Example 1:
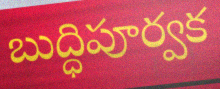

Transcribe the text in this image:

బుద్ధిపూర్వక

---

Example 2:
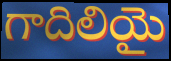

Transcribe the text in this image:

గాదిలియై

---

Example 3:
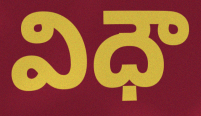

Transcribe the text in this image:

విధౌ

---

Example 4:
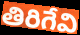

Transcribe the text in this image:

తిరిగేవి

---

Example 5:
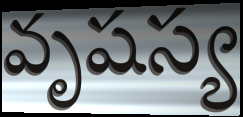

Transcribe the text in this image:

వృషస్య